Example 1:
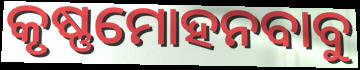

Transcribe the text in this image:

କୃଷ୍ଣମୋହନବାବୁ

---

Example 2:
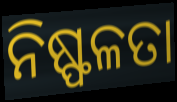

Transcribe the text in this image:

ନିଷ୍ଫଳତା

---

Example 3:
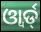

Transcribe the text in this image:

ଓ୍ୱାର୍ଡ୍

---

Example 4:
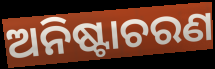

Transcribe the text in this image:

ଅନିଷ୍ଟାଚରଣ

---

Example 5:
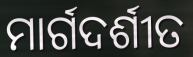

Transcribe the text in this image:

ମାର୍ଗଦର୍ଶୀତ